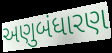
અણુબંધારણ